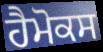
ਹੈਮੋਕਸ